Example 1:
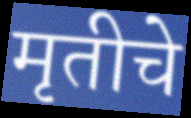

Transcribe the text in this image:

मृतीचे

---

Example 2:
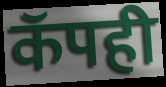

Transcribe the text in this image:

कॅपही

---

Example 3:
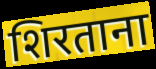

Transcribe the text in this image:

शिरताना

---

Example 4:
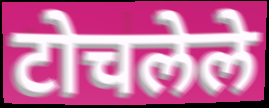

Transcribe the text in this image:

टोचलेले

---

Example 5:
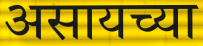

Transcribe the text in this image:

असायच्या